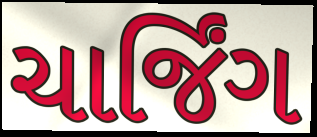
ચાર્જિંગ